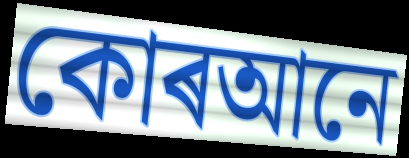
কোৰআনে